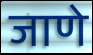
जाणे